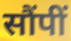
सौंपीं